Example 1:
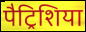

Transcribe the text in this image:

पैट्रिशिया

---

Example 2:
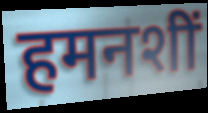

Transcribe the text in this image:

हमनशीं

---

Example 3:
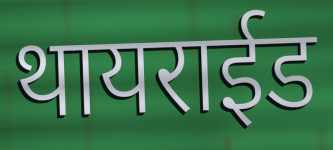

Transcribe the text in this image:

थायराईड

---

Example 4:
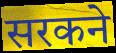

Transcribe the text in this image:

सरकने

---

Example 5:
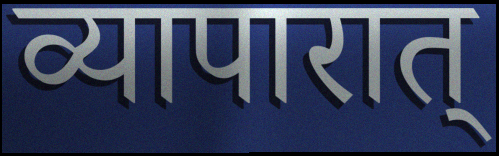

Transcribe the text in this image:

व्यापारात्